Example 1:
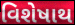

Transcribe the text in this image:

વિશેષાથ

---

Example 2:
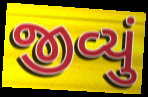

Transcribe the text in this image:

જીવ્યું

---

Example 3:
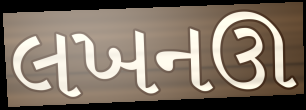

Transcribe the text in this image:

લખનઊ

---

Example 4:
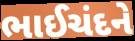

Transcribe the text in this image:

ભાઈચંદને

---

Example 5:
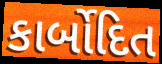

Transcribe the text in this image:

કાર્બોદિત